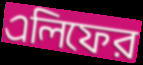
এলিফের